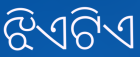
ଝିଏଟିଏ